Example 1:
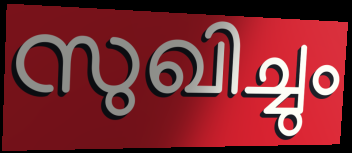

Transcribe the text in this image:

സുഖിച്ചും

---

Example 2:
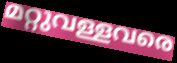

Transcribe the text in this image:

മറ്റുവള്ളവരെ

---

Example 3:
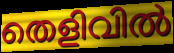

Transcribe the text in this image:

തെളിവിൽ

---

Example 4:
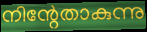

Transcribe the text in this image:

നിന്റേതാകുന്നു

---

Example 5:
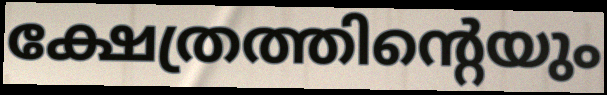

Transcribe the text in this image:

ക്ഷേത്രത്തിന്റെയും